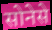
सोनेसे